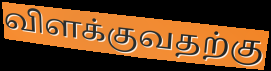
விளக்குவதற்கு